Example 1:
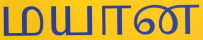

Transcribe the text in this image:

மயான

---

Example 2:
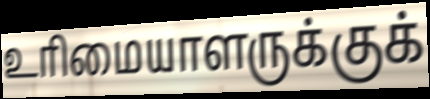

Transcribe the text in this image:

உரிமையாளருக்குக்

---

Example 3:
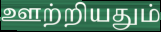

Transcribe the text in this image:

ஊற்றியதும்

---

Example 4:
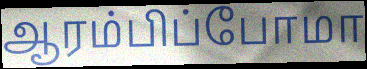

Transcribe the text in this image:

ஆரம்பிப்போமா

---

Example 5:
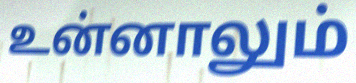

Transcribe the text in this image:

உன்னாலும்